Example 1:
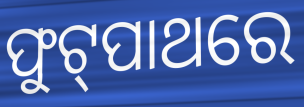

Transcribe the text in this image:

ଫୁଟ୍‍ପାଥରେ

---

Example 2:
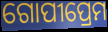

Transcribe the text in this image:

ଗୋପୀପ୍ରେମ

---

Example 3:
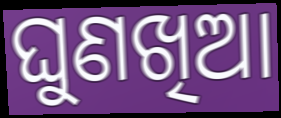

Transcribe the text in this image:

ଘୁଣଖିଆ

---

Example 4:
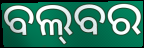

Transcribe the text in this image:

ବଲ୍‌ବର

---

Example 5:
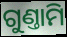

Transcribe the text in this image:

ଗୁଣ୍ତାମି